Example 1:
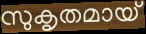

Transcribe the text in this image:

സുകൃതമായ്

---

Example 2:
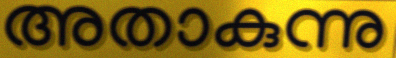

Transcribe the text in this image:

അതാകുന്നു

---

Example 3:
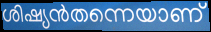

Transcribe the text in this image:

ശിഷ്യൻതന്നെയാണ്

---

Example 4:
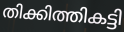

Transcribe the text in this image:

തിക്കിത്തികട്ടി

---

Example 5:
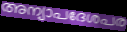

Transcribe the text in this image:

അന്യാപദേശപര